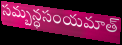
సమ్బన్ధసంయమాత్